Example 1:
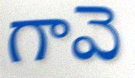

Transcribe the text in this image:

గావె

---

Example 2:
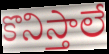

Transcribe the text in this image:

కొనిస్తాలే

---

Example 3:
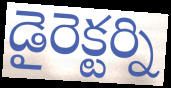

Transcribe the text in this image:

డైరెక్టర్ని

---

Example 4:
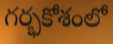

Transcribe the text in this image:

గర్భకోశంలో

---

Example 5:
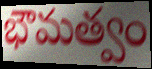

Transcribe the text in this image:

భౌమత్వం